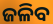
ଜଳିବ